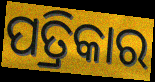
ପତ୍ରିକାର